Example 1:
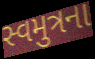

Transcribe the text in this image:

સ્વમુત્રના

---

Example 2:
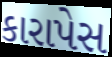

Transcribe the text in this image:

કારાપેસ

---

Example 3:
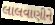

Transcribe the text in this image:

લાલવાણીને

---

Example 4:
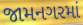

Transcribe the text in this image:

જામનગરમાં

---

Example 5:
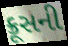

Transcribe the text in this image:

ક્રૂસની